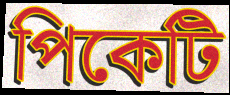
পিকেটি